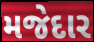
મજેદાર